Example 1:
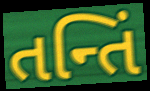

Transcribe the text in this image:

તન્તિં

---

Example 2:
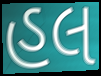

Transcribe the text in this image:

હલ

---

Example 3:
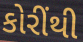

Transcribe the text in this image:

કોરીંથી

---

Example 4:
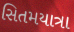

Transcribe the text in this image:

સિતમયાત્રા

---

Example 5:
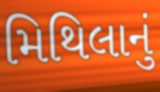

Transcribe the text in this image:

મિથિલાનું